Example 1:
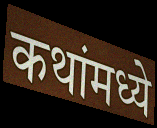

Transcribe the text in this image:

कथांमध्ये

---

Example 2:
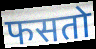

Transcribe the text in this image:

फसतो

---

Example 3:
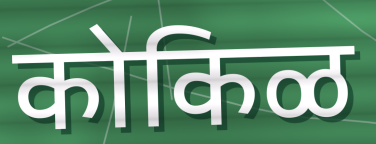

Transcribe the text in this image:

कोकिळ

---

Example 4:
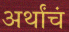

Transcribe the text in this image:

अर्थांचं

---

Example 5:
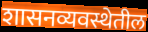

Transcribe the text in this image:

शासनव्यवस्थेतील